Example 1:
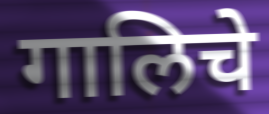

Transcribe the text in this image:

गालिचे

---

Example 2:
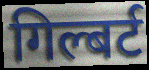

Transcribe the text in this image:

गिल्बर्ट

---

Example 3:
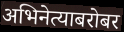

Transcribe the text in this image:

अभिनेत्याबरोबर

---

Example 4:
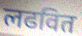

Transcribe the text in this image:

लढवित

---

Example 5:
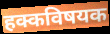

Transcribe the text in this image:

हक्कविषयक